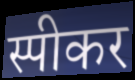
स्पीकर